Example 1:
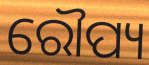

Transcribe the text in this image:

ରୌପ୍ୟ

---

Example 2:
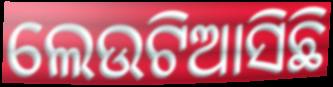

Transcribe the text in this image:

ଲେଉଟିଆସିଛି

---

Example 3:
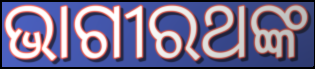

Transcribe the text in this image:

ଭାଗୀରଥଙ୍କ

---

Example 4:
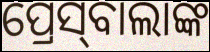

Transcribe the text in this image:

ପ୍ରେସ୍‌ବାଲାଙ୍କ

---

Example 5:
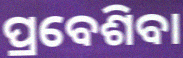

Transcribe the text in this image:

ପ୍ରବେଶିବା